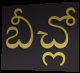
బీచ్లో